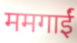
ममगाईं